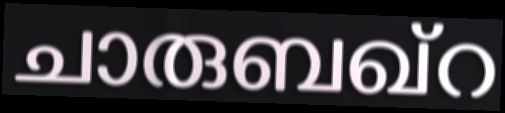
ചാരുബഖ്റ